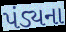
પંડ્યના